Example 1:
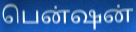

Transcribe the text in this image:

பென்ஷன்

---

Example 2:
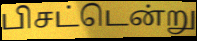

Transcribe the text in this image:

பிசட்டென்று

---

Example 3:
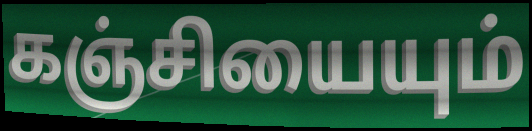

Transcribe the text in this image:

கஞ்சியையும்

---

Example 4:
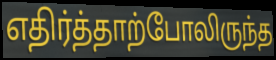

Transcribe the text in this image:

எதிர்த்தாற்போலிருந்த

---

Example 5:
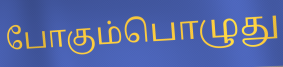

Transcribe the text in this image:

போகும்பொழுது